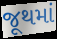
જૂથમાં